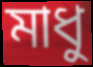
মাধু